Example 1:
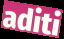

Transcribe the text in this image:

aditi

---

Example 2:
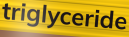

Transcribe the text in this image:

triglyceride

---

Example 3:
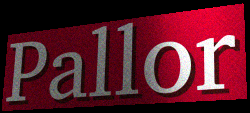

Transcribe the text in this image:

Pallor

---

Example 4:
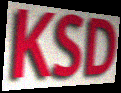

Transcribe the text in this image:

KSD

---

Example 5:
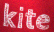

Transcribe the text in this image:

kite